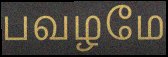
பவழமே